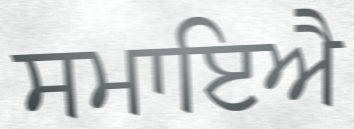
ਸਮਾਇਐ